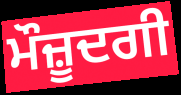
ਮੌਜ਼ੂਦਗੀ